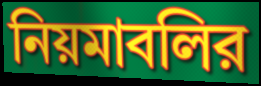
নিয়মাবলির